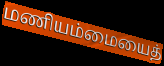
மணியம்மையைத்